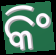
କିଂ